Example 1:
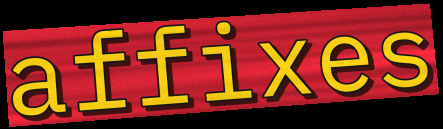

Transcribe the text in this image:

affixes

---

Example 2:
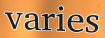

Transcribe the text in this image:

varies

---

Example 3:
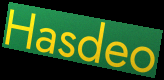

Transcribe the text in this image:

Hasdeo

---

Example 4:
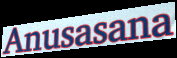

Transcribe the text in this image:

Anusasana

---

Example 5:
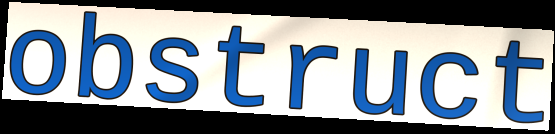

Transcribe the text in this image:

obstruct